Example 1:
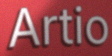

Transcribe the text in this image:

Artio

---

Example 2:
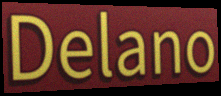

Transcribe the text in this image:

Delano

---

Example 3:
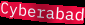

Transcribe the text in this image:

Cyberabad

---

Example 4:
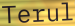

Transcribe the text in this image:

Terul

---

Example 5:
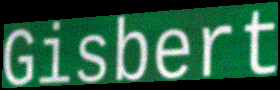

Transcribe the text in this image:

Gisbert